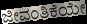
ಜೀವಂತಿಕೆಯೇ